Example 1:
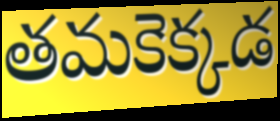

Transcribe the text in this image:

తమకెక్కడ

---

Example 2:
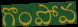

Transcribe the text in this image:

గొంపోవ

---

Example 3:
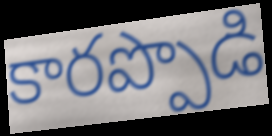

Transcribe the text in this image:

కారప్పొడి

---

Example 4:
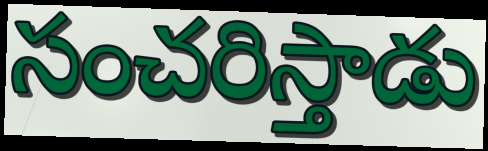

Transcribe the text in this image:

సంచరిస్తాడు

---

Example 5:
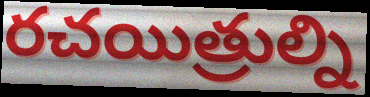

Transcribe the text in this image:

రచయిత్రుల్ని